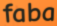
faba